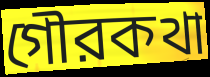
গৌরকথা